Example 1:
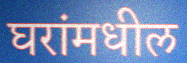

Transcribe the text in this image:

घरांमधील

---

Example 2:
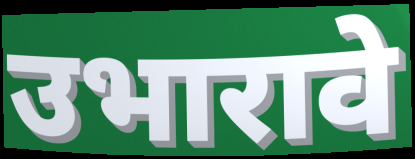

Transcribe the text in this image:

उभारावे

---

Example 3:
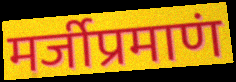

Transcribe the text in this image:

मर्जीप्रमाणं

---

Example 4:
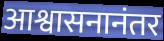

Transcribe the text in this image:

आश्वासनानंतर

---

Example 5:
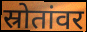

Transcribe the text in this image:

स्रोतांवर